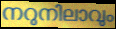
നറുനിലാവും